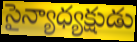
సైన్యాధ్యక్షుడు